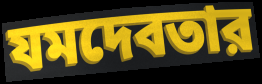
যমদেবতার